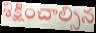
శిక్షించాల్సిన